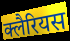
क्लैरियस